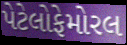
પેટેલોફેમોરલ